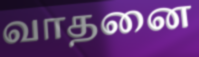
வாதனை